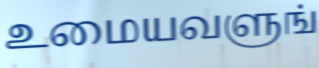
உமையவளுங்